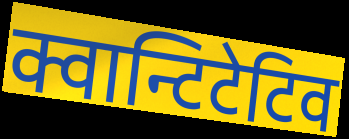
क्वान्टिटेटिव